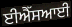
ਈਐੱਸਆਈ